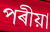
পৰীয়া